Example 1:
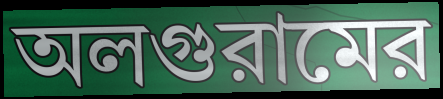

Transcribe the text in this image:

অলগুরামের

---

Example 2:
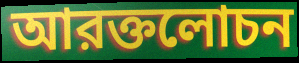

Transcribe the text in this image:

আরক্তলোচন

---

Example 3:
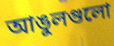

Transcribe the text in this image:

আঙুলগুলো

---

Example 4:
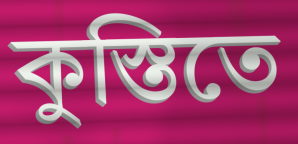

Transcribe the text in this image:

কুস্তিতে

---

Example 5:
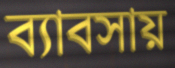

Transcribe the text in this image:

ব্যাবসায়